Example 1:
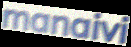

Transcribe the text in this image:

manaivi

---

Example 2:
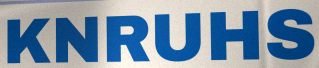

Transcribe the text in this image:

KNRUHS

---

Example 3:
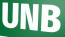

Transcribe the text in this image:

UNB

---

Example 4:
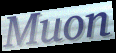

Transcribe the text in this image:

Muon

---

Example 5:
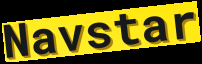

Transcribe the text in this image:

Navstar